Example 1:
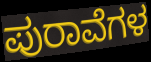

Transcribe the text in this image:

ಪುರಾವೆಗಳ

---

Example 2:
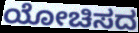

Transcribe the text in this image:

ಯೋಚಿಸದ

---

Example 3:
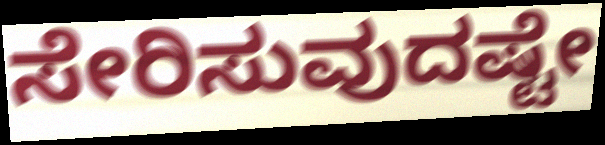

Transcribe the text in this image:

ಸೇರಿಸುವುದಷ್ಟೇ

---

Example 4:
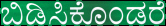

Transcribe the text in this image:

ಬಿಡಿಸಿಕೊಂಡರೆ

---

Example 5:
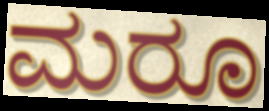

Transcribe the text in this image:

ಮರೂ